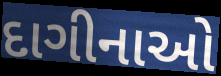
દાગીનાઓ